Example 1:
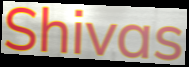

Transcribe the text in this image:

Shivas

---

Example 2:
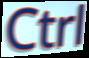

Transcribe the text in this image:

Ctrl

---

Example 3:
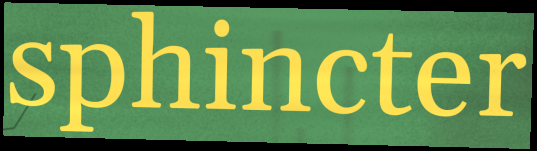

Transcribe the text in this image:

sphincter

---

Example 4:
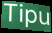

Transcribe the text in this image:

Tipu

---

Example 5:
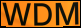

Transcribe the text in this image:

WDM